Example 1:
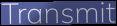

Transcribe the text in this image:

Transmit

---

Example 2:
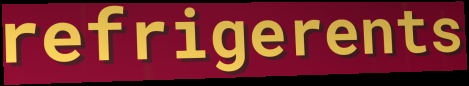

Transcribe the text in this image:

refrigerents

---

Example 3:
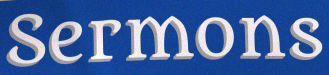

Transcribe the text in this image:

Sermons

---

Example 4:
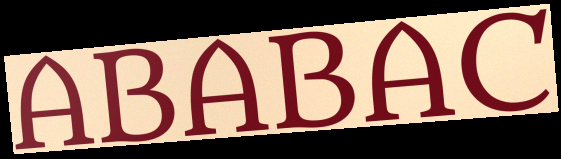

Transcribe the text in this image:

ABABAC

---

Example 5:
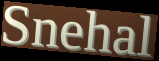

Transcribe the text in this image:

Snehal